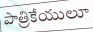
పాత్రికేయులూ